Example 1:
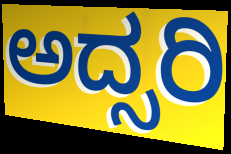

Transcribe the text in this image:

ಅದ್ಸರಿ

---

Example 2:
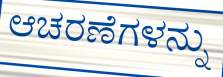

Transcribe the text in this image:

ಆಚರಣೆಗಳನ್ನು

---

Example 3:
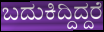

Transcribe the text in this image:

ಬದುಕಿದ್ದಿದ್ದರೆ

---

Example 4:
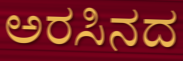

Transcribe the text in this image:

ಅರಸಿನದ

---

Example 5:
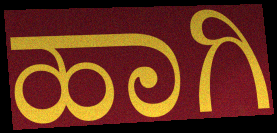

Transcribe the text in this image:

ಹಾಗಿ